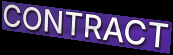
CONTRACT